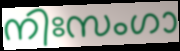
നിഃസംഗാ